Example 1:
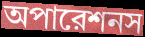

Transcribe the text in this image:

অপারেশনস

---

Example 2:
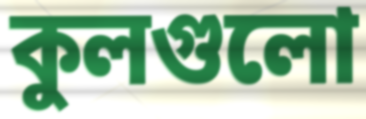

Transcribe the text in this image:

কুলগুলো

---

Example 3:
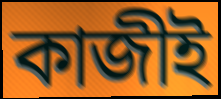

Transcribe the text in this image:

কাজীই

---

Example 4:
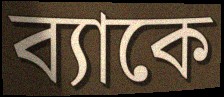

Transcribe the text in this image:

ব্যাকে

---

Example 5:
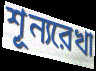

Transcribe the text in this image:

শূন্যরেখা